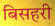
बिसहरी